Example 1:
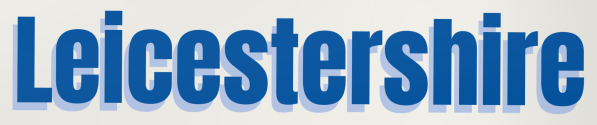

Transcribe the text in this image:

Leicestershire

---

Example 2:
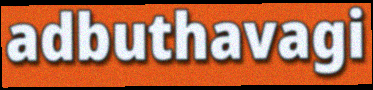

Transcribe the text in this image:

adbuthavagi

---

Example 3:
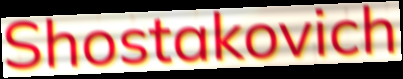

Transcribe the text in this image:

Shostakovich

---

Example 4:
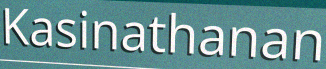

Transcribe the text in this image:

Kasinathanan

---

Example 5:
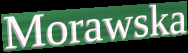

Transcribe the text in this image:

Morawska